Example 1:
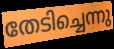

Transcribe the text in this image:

തേടിച്ചെന്നു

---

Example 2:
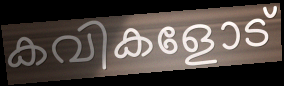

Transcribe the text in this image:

കവികളോട്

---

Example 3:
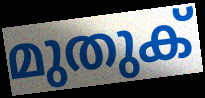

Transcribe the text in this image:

മുതുക്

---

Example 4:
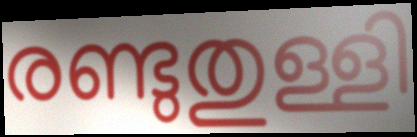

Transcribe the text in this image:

രണ്ടുതുള്ളി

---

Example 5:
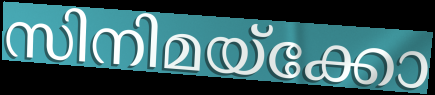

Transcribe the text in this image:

സിനിമയ്ക്കോ